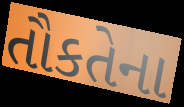
તૌકતેના